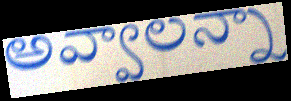
అవ్వాలన్నా